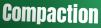
Compaction